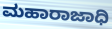
ಮಹಾರಾಜಾಧಿ